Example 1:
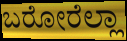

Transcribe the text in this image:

ಬರೋರೆಲ್ಲಾ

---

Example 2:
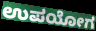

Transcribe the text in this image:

ಉಪಯೋಗ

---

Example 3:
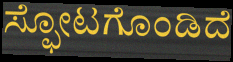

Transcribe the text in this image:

ಸ್ಫೋಟಗೊಂಡಿದೆ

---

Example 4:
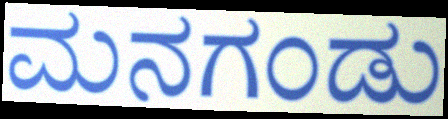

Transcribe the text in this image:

ಮನಗಂಡು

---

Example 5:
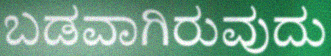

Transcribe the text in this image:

ಬಡವಾಗಿರುವುದು